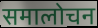
समालोचन